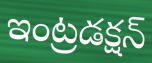
ఇంట్రడక్షన్